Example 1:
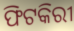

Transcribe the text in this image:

ଫିଟକିରୀ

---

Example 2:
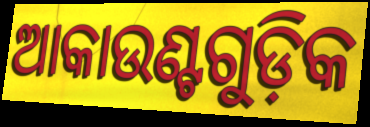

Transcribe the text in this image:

ଆକାଉଣ୍ଟଗୁଡ଼ିକ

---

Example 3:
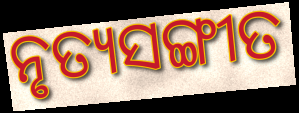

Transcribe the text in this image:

ନୃତ୍ୟସଙ୍ଗୀତ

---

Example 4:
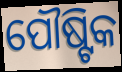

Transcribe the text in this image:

ପୌଷ୍ଟିକ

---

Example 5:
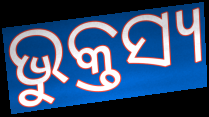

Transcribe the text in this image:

ଭୁକ୍ତସ୍ୟ